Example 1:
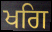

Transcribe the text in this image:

ਖਗਿ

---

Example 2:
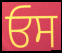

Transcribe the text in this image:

ਓਸ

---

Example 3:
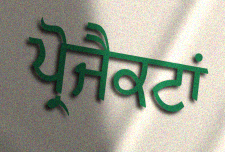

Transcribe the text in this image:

ਪ੍ਰੋਜੈਕਟਾਂ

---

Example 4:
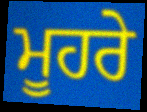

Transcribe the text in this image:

ਮੂਹਰੇ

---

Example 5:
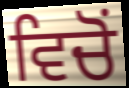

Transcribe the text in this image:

ਵਿਚੋਂ